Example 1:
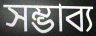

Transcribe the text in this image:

সম্ভাব্য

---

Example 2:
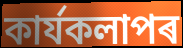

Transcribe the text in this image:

কাৰ্যকলাপৰ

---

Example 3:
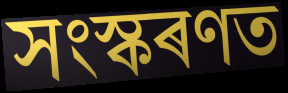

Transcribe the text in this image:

সংস্কৰণত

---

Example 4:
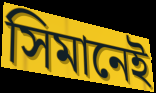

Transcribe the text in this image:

সিমানেই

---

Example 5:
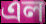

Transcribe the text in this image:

এল